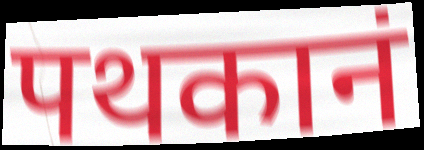
पथकानं